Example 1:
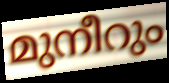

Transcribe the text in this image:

മുനീറും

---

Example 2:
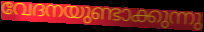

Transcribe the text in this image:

വേദനയുണ്ടാക്കുന്നു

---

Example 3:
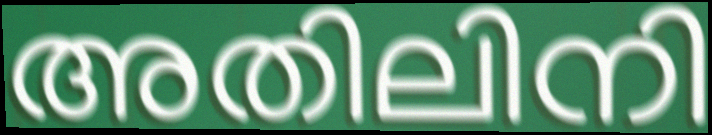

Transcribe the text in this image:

അതിലിനി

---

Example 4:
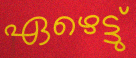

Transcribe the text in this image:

ഏഴെട്ടു്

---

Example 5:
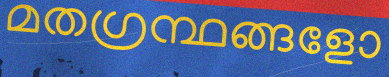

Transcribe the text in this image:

മതഗ്രന്ഥങ്ങളോ